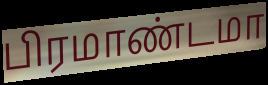
பிரமாண்டமா